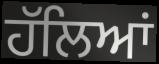
ਹੱਲਿਆਂ